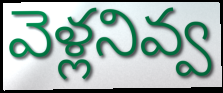
వెళ్లనివ్వ